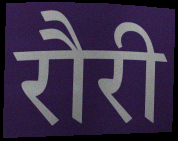
रौरी